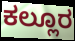
ಕಲ್ಲೂರ